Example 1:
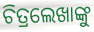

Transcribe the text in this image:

ଚିତ୍ରଲେଖାଙ୍କୁ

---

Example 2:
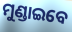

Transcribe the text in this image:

ମୁଣ୍ଡାଇବେ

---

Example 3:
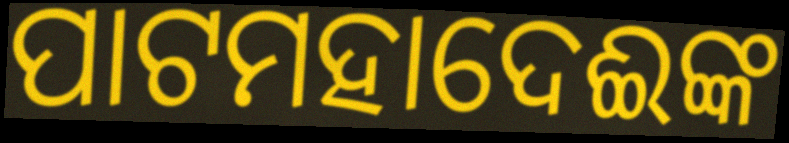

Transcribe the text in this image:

ପାଟମହାଦେଈଙ୍କ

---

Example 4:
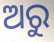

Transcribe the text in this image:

ଅରୁ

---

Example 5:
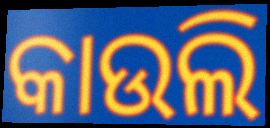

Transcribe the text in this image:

କାଉଲି